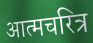
आत्मचरित्र